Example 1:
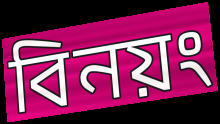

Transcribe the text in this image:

বিনয়ং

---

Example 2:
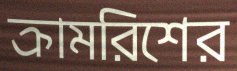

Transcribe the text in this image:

ক্রামরিশের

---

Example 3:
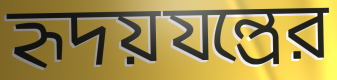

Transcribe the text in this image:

হৃদয়যন্ত্রের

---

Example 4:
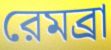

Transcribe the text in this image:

রেমব্রা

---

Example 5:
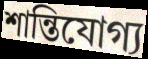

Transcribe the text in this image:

শান্তিযোগ্য